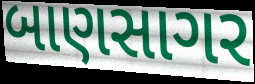
બાણસાગર